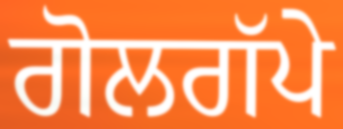
ਗੋਲਗੱਪੇ